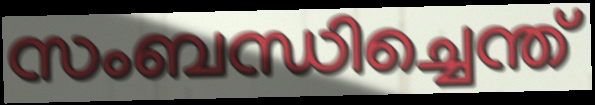
സംബന്ധിച്ചെന്ത്